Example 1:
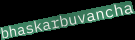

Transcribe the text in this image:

bhaskarbuvancha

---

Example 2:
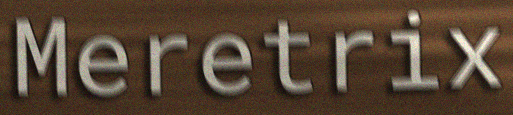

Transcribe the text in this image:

Meretrix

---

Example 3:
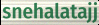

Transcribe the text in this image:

snehalatajj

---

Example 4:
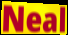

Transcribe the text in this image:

Neal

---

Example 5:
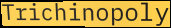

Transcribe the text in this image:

Trichinopoly